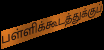
பள்ளிக்கூடத்துக்குப்